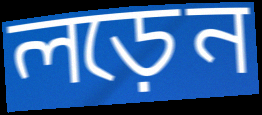
লড়েন